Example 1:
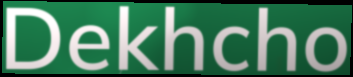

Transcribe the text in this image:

Dekhcho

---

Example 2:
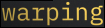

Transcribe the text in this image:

warping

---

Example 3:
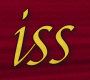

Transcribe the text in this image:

iss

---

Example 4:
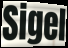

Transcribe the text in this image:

Sigel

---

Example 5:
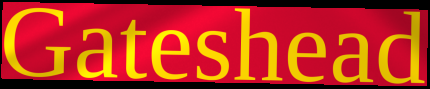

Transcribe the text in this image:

Gateshead